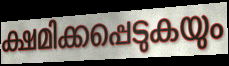
ക്ഷമിക്കപ്പെടുകയും